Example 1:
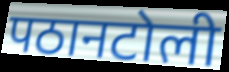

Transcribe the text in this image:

पठानटोली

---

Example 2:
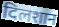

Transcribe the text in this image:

दिलशान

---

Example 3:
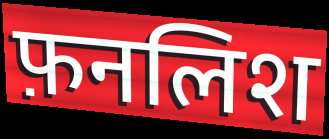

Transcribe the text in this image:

फ़नलिश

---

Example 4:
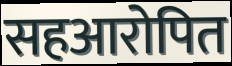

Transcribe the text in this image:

सहआरोपित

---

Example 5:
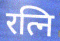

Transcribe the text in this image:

रत्नि